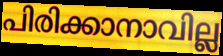
പിരിക്കാനാവില്ല